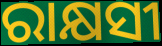
ରାକ୍ଷସୀ